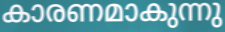
കാരണമാകുന്നു